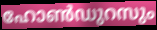
ഹോൺഡുറസും